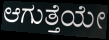
ಆಗುತ್ತೆಯೇ